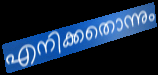
എനിക്കതൊന്നും